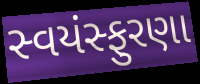
સ્વયંસ્ફુરણા